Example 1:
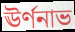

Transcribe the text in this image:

ঊর্ণনাভ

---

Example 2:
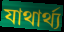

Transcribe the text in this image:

যাথার্থ্য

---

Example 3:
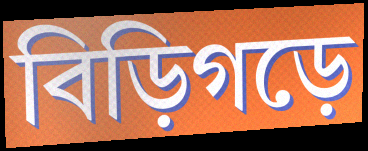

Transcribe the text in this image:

বিড়িগড়ে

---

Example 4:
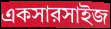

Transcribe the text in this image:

একসারসাইজ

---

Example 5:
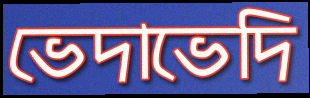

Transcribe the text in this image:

ভেদাভেদি